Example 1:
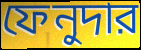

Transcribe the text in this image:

ফেনুদার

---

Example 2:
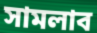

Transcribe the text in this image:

সামলাব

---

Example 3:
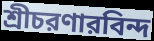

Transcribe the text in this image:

শ্রীচরণারবিন্দ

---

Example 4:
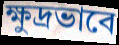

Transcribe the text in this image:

ক্ষুদ্রভাবে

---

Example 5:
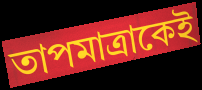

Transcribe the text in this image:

তাপমাত্রাকেই